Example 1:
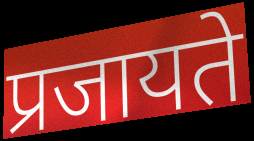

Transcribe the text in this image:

प्रजायते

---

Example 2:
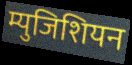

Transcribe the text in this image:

म्‍युजिशियन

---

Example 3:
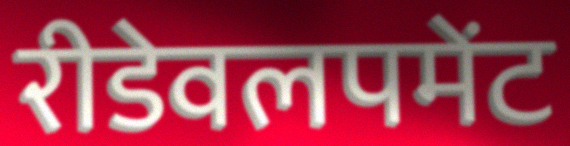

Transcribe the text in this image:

रीडेवलपमेंट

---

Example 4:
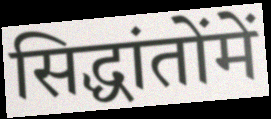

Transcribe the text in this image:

सिद्धांतोंमें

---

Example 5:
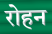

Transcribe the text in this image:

रोहन